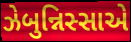
ઝેબુન્નિસ્સાએ